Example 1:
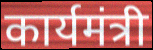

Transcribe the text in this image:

कार्यमंत्री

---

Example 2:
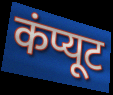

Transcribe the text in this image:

कंप्यूट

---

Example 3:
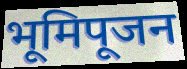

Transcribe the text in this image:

भूमिपूजन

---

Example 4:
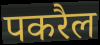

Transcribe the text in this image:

पकरैल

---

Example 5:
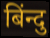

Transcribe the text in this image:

बिंन्दु